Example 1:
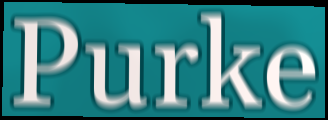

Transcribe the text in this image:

Purke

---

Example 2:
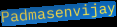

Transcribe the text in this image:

Padmasenvijay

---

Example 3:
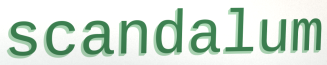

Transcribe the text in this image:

scandalum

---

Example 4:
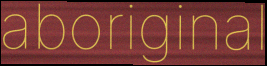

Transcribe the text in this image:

aboriginal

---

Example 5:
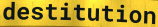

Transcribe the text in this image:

destitution